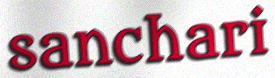
sanchari